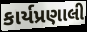
કાર્યપ્રણાલી